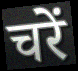
चरें